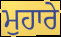
ਮੁਹਾਰੇ